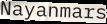
Nayanmars